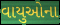
વાયુઓના